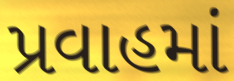
પ્રવાહમાં